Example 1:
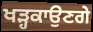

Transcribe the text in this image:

ਖੜ੍ਹਕਾਉਣਗੇ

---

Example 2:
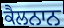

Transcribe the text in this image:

ਕੈਲਨਾਨ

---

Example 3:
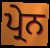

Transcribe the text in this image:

ਪ੍ਰੇਨ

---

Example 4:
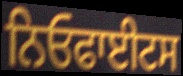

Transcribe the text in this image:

ਨਿਓਫਾਈਟਸ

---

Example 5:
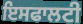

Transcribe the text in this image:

ਇਸਫਾਲਟੀ